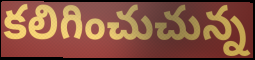
కలిగించుచున్న